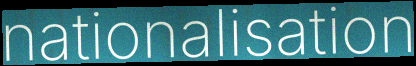
nationalisation